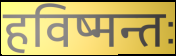
हविष्मन्तः